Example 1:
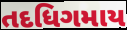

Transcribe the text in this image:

તદધિગમાય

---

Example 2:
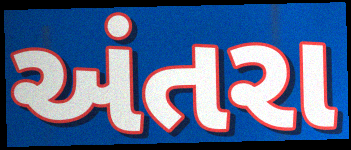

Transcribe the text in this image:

અંતરા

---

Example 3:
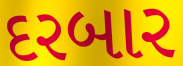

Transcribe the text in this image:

દરબાર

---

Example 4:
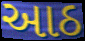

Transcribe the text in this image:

આઠ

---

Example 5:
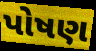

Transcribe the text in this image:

પોષણ